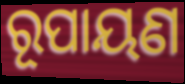
ରୂପାୟଣ